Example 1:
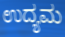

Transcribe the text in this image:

ಉದ್ಯಮ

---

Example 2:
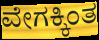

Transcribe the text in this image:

ವೇಗಕ್ಕಿಂತ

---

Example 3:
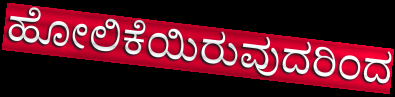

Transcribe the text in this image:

ಹೋಲಿಕೆಯಿರುವುದರಿಂದ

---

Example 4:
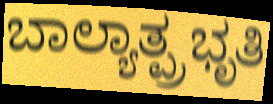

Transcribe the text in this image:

ಬಾಲ್ಯಾತ್ಪ್ರಭೃತಿ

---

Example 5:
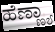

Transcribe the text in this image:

ಹೆಣ್ಣ್ಯಾ